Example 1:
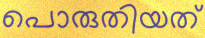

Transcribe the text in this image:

പൊരുതിയത്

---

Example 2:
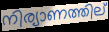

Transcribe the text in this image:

നിര്യാണത്തില്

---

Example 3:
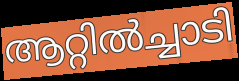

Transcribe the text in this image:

ആറ്റിൽച്ചാടി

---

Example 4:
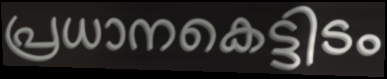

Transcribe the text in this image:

പ്രധാനകെട്ടിടം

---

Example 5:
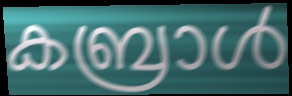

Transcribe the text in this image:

കബ്രാൾ